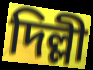
দিল্লী